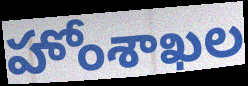
హోంశాఖల